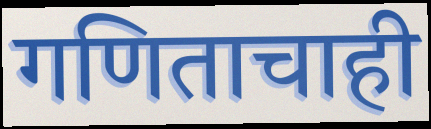
गणिताचाही